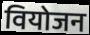
वियोजन